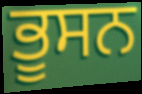
ਭੂਸਨ